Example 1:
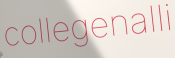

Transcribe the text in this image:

collegenalli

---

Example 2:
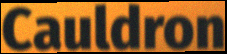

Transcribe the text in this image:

Cauldron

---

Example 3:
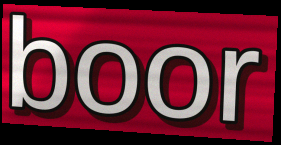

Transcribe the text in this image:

boor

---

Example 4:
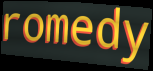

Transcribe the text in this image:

romedy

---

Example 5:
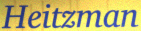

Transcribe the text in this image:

Heitzman